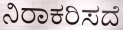
ನಿರಾಕರಿಸದೆ